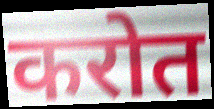
करोत